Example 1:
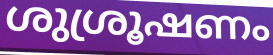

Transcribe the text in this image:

ശുശ്രൂഷണം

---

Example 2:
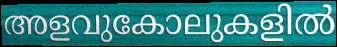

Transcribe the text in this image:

അളവുകോലുകളിൽ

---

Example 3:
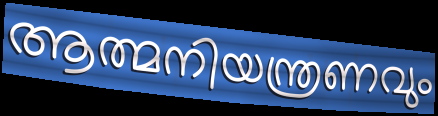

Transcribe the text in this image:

ആത്മനിയന്ത്രണവും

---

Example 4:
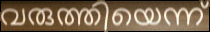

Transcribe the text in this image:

വരുത്തിയെന്ന്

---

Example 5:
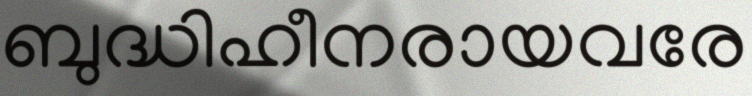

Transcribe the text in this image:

ബുദ്ധിഹീനരായവരേ